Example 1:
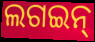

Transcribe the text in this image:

ଲଗଇନ୍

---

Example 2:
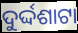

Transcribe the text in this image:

ଦୁର୍ଦ୍ଦଶାଟା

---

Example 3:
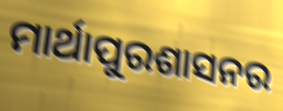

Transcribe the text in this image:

ମାର୍ଥାପୁରଶାସନର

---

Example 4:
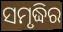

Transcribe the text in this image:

ସମୃଦ୍ଧିର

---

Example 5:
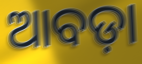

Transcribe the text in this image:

ଆବଡ଼ା